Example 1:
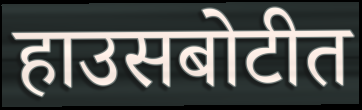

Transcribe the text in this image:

हाउसबोटीत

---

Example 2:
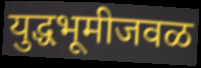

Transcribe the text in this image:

युद्धभूमीजवळ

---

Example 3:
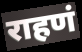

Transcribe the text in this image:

राहणं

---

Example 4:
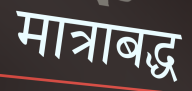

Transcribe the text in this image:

मात्राबद्ध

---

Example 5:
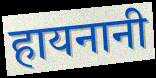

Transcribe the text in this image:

हायनानी